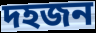
দহজন